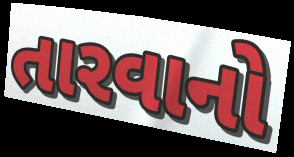
તારવાનો